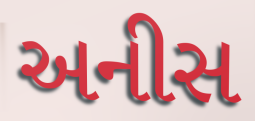
અનીસ